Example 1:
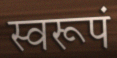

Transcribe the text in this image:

स्वरूपं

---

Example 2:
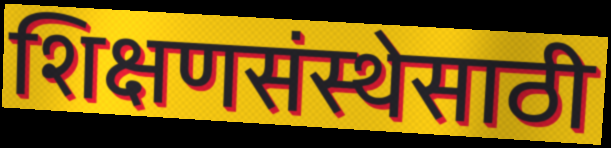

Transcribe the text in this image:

शिक्षणसंस्थेसाठी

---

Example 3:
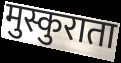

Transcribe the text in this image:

मुस्कुराता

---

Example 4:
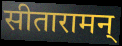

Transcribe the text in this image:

सीतारामन्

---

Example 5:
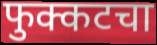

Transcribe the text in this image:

फुक्कटचा